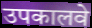
उपकालवे